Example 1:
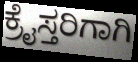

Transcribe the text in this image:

ಕ್ರೈಸ್ತರಿಗಾಗಿ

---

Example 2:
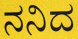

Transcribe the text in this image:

ನನಿದ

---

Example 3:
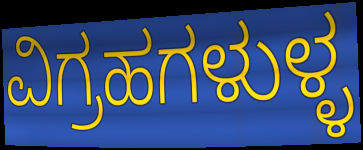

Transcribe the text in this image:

ವಿಗ್ರಹಗಳುಳ್ಳ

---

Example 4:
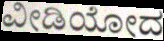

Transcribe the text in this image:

ವೀಡಿಯೋದ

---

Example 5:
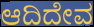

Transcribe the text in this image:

ಆದಿದೇವ